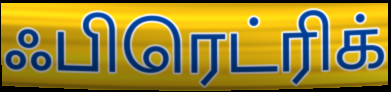
ஃபிரெட்ரிக்